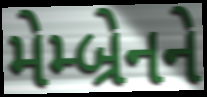
મેમ્બ્રેનને